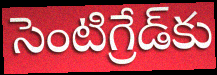
సెంటిగ్రేడ్‌కు